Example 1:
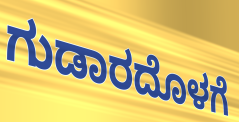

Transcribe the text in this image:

ಗುಡಾರದೊಳಗೆ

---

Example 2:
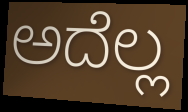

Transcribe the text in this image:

ಅದೆಲ್ಲ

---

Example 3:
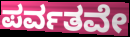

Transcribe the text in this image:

ಪರ್ವತವೇ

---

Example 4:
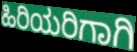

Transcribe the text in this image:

ಹಿರಿಯರಿಗಾಗಿ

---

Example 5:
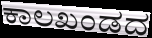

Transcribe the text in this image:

ಕಾಲಖಂಡದ